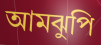
আমঝুপি